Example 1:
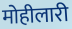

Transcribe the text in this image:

मोहीलारी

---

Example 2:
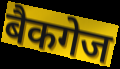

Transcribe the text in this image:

बैकगेज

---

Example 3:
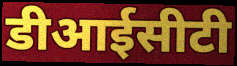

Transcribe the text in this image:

डीआईसीटी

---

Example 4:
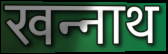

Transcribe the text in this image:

खन्नाथ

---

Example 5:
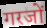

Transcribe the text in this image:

गरजों